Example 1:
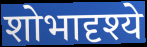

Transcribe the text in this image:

शोभादृश्ये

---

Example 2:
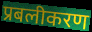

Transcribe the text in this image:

प्रबलीकरण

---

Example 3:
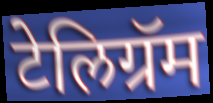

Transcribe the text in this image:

टेलिग्रॅम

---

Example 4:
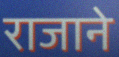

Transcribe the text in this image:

राजाने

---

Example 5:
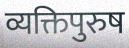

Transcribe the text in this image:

व्यक्तिपुरुष